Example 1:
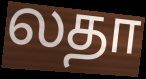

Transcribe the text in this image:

லதா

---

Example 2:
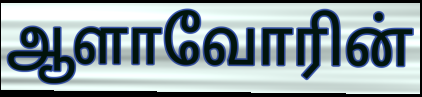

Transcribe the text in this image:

ஆளாவோரின்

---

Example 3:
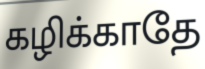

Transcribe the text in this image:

கழிக்காதே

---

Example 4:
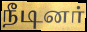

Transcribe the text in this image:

நீடினர்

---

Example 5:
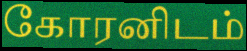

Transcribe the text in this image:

கோரனிடம்